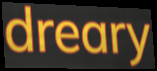
dreary